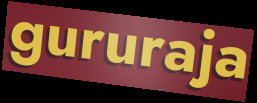
gururaja